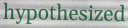
hypothesized